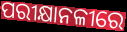
ପରୀକ୍ଷାନଳୀରେ